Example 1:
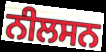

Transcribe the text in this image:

ਨੀਲਸਨ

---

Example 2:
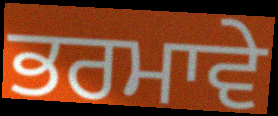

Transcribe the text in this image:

ਭਰਮਾਵੇ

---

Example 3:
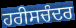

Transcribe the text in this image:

ਹਰੀਸਚੰਦਰ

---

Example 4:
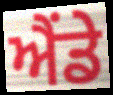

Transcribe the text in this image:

ਐਂਡੇ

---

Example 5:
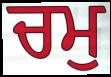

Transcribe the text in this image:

ਚਮੁ